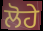
ਲੋਹੇ